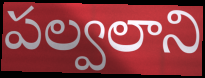
పల్వలాని